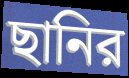
ছানির